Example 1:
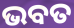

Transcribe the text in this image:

ଭବତ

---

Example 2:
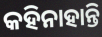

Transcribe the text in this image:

କହିନାହାନ୍ତି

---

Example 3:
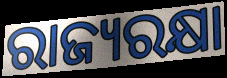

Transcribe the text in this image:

ରାଜ୍ୟରକ୍ଷା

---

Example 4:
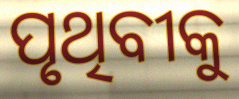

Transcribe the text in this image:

ପୃଥିବୀକୁ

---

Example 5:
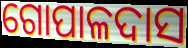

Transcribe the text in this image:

ଗୋପାଳଦାସ